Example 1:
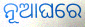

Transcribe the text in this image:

ନୂଆଘରେ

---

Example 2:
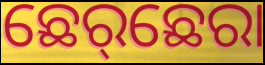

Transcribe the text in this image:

ଛେର୍‌ଛେରା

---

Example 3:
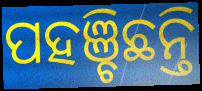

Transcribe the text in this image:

ପହଞ୍ଚିଛନ୍ତି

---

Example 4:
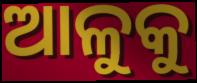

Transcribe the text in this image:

ଆଳୁକୁ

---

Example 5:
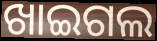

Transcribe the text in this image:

ଖାଇଗଲ